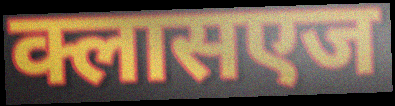
क्लासएज